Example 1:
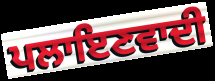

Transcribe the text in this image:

ਪਲਾਇਣਵਾਦੀ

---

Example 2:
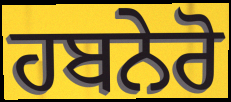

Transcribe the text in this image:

ਹਬਨੇਰੋ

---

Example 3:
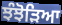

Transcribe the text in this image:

ਝੰਝੋੜਿਆ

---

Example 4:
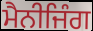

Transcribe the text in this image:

ਮੈਨੀਜਿੰਗ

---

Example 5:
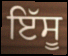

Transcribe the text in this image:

ਇੱਸੂ